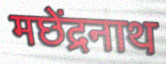
मछेंद्रनाथ